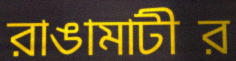
রাঙামাটীর